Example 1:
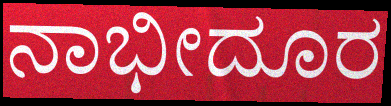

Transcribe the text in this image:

ನಾಭೀದೂರ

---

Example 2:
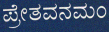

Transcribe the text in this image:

ಪ್ರೇತವನಮಂ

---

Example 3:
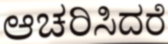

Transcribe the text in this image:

ಆಚರಿಸಿದರೆ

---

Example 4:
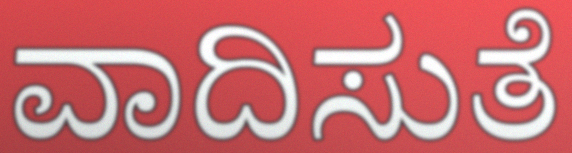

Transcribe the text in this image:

ವಾದಿಸುತೆ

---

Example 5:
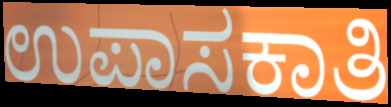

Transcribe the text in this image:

ಉಪಾಸಕಾತಿ